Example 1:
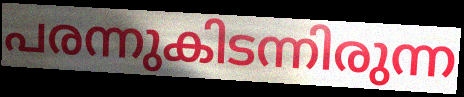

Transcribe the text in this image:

പരന്നുകിടന്നിരുന്ന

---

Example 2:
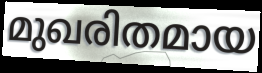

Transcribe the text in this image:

മുഖരിതമായ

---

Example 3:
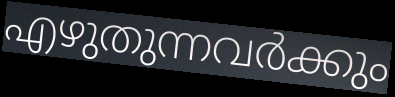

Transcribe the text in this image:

എഴുതുന്നവർക്കും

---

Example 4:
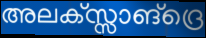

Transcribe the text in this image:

അലക്സ്സാങ്ദ്രെ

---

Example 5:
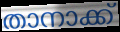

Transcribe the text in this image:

താനാക്ക്